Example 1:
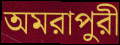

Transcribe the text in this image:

অমরাপুরী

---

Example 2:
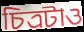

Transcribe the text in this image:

চিত্রটাও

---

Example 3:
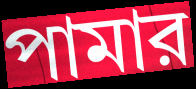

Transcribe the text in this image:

পামার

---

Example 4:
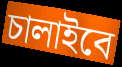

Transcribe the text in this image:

চালাইবে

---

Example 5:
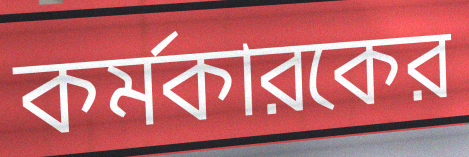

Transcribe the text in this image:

কর্মকারকের